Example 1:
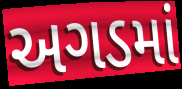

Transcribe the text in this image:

અગડમાં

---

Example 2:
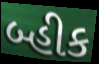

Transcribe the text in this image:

બ્હીક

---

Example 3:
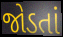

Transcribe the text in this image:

જોડતાં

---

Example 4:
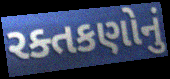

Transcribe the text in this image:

રક્તકણોનું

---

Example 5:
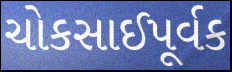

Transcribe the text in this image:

ચોકસાઈપૂર્વક